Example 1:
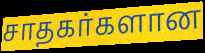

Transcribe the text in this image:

சாதகர்களான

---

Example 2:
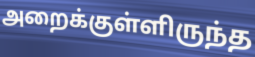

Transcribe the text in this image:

அறைக்குள்ளிருந்த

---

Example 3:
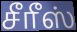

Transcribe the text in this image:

சீரீஸ்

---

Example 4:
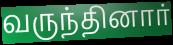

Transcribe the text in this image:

வருந்தினார்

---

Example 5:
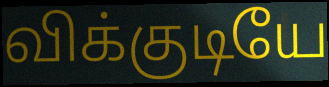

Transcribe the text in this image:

விக்குடியே